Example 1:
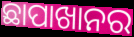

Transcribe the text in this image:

ଛାପାଖାନର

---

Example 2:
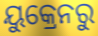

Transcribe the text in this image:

ୟୁକ୍ରେନରୁ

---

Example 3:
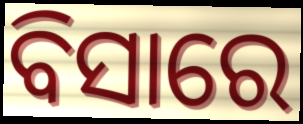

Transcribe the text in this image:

ବିସାରେ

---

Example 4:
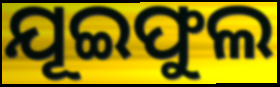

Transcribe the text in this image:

ଯୂଇଫୁଲ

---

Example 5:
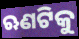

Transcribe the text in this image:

ଋଣଟିକୁ